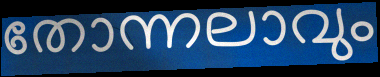
തോന്നലാവും